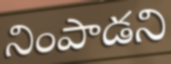
నింపాడని